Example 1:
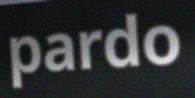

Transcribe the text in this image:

pardo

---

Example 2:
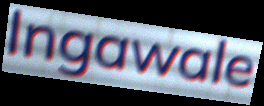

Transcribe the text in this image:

Ingawale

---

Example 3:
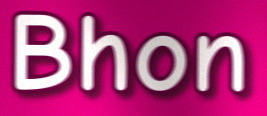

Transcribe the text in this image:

Bhon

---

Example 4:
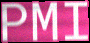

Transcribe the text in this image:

PMI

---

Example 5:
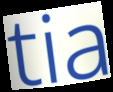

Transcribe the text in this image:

tia